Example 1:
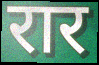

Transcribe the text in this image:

रार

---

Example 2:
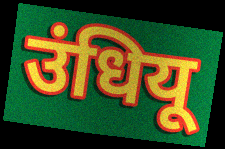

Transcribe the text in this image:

उंधियू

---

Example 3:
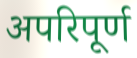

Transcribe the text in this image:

अपरिपूर्ण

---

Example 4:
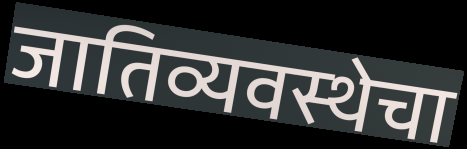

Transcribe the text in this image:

जातिव्यवस्थेचा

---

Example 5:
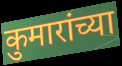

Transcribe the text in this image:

कुमारांच्या